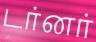
டர்னர்